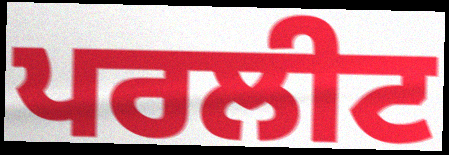
ਪਰਲੀਟ